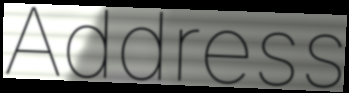
Address